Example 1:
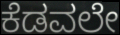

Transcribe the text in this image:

ಕೆಡವಲೇ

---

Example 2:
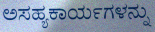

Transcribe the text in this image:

ಅಸಹ್ಯಕಾರ್ಯಗಳನ್ನು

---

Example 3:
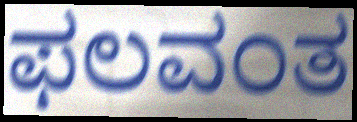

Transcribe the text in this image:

ಫಲವಂತ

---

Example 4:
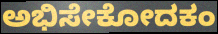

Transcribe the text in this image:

ಅಭಿಸೇಕೋದಕಂ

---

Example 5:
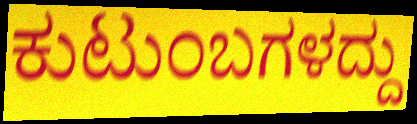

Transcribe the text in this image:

ಕುಟುಂಬಗಳದ್ದು